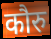
कौरु